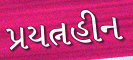
પ્રયત્નહીન